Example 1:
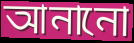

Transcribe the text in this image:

আনানো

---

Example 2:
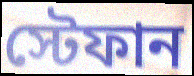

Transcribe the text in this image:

স্টেফান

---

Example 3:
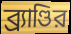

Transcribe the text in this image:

ব্র্যাণ্ডির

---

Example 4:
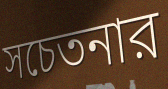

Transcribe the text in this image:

সচেতনার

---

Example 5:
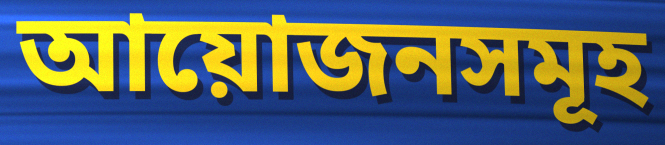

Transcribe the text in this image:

আয়োজনসমূহ